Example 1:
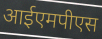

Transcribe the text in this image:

आईएमपीएस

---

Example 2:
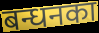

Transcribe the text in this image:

बन्धनका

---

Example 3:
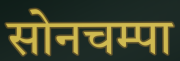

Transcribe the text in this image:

सोनचम्पा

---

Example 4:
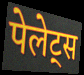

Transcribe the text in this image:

पेलेट्स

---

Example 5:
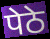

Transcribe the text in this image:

पेठे